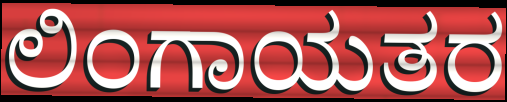
ಲಿಂಗಾಯತರ